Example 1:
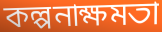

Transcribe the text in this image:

কল্পনাক্ষমতা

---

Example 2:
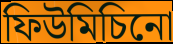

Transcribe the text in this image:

ফিউমিচিনো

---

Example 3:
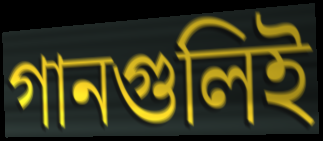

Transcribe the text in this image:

গানগুলিই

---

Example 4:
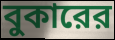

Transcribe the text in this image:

বুকারের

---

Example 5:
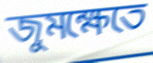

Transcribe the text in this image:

জুমক্ষেতে